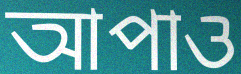
আপাও